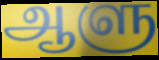
ஆளு